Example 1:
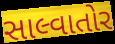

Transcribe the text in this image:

સાલ્વાતોર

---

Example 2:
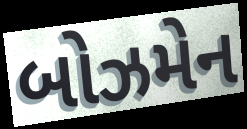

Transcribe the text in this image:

બોઝમેન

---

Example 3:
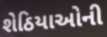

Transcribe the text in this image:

શેઠિયાઓની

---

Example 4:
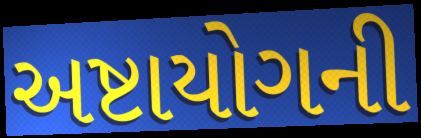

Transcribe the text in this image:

અષ્ટાયોગની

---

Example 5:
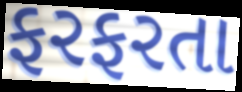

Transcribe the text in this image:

ફરફરતા